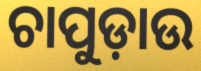
ଚାପୁଡ଼ାଉ